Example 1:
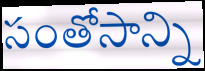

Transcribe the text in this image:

సంతోసాన్ని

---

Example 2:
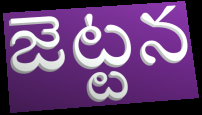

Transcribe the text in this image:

జెట్టన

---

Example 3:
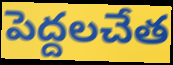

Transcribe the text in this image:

పెద్దలచేత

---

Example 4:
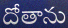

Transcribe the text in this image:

దోతాను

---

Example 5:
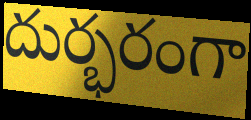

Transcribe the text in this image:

దుర్భరంగా